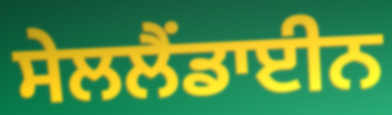
ਸੇਲਲੈਂਡਾਈਨ